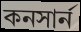
কনসার্ন